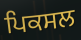
ਪਿਕਸਲ